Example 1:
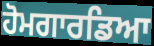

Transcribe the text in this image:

ਹੋਮਗਾਰਡਿਆ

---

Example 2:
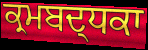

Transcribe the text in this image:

ਕ੍ਰਮਬਦ੍ਧਕਾ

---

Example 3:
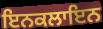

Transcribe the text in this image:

ਇਨਕਲਾਇਨ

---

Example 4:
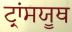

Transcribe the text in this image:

ਟ੍ਰਾਂਸਯੂਥ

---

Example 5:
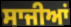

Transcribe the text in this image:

ਸਾਜੀਆਂ